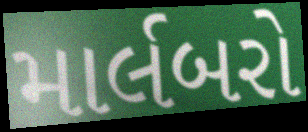
માર્લબરો